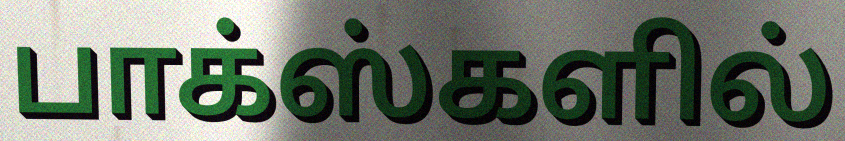
பாக்ஸ்களில்